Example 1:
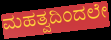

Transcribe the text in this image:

ಮಹತ್ವದಿಂದಲೇ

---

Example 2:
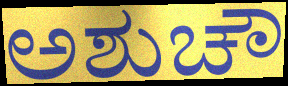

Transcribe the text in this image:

ಅಶುಚೌ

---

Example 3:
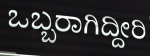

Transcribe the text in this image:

ಒಬ್ಬರಾಗಿದ್ದೀರಿ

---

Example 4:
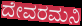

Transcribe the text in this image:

ದೇವರಮನಿ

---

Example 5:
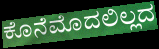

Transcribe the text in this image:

ಕೊನೆಮೊದಲಿಲ್ಲದ